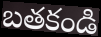
బతకండి